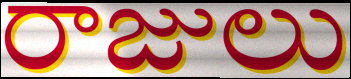
రాజులు